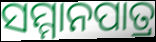
ସମ୍ମାନପାତ୍ର